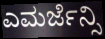
ಎಮರ್ಜೆನ್ಸಿ